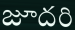
జూదరి